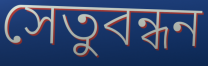
সেতুবন্ধন